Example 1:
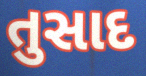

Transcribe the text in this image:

તુસાદ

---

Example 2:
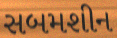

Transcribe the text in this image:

સબમશીન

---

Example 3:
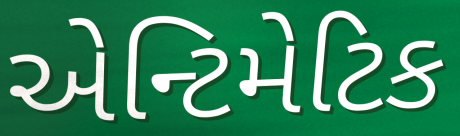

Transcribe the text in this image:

એન્ટિમેટિક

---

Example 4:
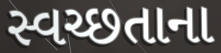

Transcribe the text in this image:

સ્વચ્છતાના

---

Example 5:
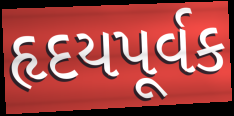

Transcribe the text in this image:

હૃદયપૂર્વક